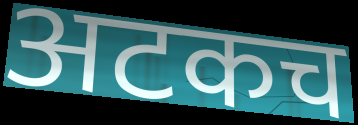
अटकच